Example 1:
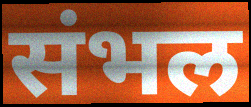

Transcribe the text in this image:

संभल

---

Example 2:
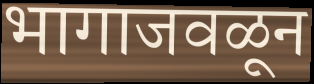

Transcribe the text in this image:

भागाजवळून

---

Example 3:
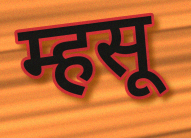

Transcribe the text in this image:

म्हसू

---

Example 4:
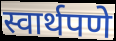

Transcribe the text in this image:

स्वार्थपणे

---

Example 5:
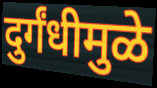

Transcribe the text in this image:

दुर्गंधीमुळे